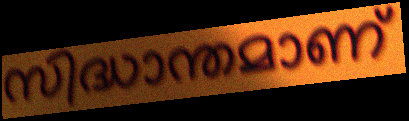
സിദ്ധാന്തമാണ്